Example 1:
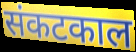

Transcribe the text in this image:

संकटकाल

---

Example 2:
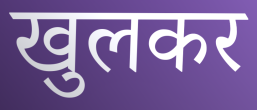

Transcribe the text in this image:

खुलकर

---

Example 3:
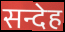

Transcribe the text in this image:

सन्देह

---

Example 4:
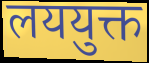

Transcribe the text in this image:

लययुक्त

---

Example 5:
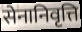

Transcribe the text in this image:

सेनानिवृत्ति